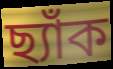
ছ্যাঁক